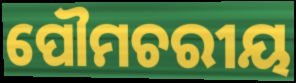
ପୌମଚରୀୟ